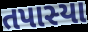
તપાસ્યા